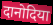
दानोदिया